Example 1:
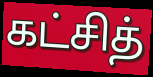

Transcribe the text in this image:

கட்சித்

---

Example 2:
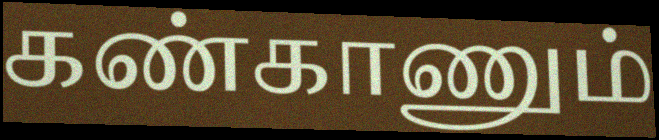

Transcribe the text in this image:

கண்காணும்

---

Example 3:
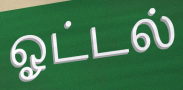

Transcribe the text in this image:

ஓட்டல்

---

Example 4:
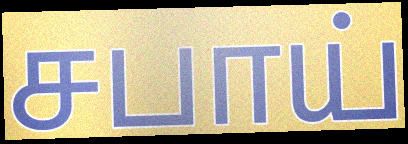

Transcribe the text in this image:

சபாய்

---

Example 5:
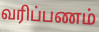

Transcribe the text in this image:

வரிப்பணம்